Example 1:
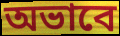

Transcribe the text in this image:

অভাবে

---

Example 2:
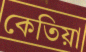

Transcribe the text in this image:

কেতিয়া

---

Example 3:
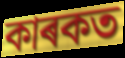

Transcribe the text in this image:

কাৰকত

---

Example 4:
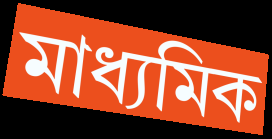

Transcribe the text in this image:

মাধ্যমিক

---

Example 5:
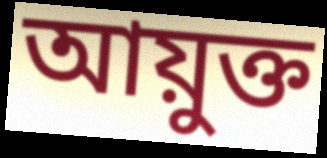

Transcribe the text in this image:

আয়ুক্ত